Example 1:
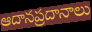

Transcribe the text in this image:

ఆదానప్రదానాలు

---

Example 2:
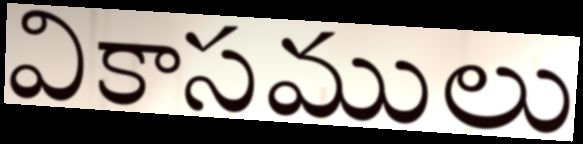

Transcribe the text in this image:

వికాసములు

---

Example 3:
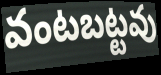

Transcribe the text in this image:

వంటబట్టవు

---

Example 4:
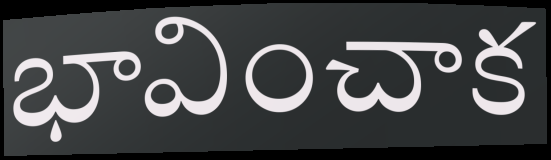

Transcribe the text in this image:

భావించాక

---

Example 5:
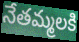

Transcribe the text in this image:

నేతమ్మలకి